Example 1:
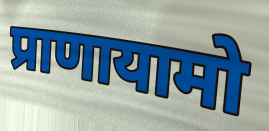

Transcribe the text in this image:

प्राणायामो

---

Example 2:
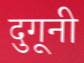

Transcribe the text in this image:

दुगूनी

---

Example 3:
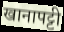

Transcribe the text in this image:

खानापट्टी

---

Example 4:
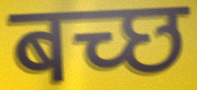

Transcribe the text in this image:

बच्छ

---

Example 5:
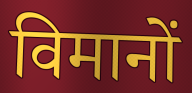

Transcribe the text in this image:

विमानों